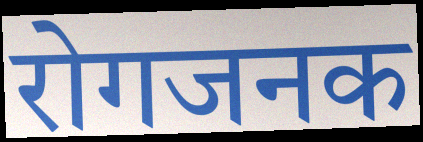
रोगजनक